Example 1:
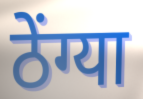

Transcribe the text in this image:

ठेंग्या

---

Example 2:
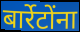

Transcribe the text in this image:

बार्रेटोंना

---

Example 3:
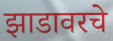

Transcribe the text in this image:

झाडावरचे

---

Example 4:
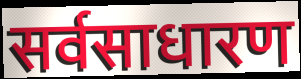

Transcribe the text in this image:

सर्वसाधारण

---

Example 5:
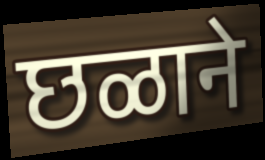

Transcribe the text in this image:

छळाने